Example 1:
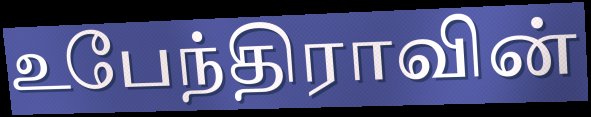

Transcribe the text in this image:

உபேந்திராவின்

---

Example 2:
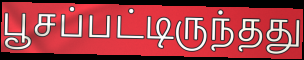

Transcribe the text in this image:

பூசப்பட்டிருந்தது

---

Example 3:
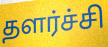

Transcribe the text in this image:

தளர்ச்சி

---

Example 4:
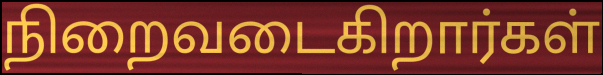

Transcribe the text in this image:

நிறைவடைகிறார்கள்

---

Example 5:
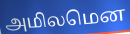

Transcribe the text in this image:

அமிலமென